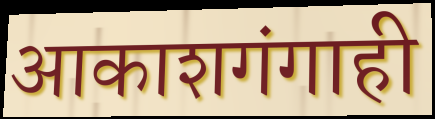
आकाशगंगाही